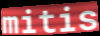
mitis